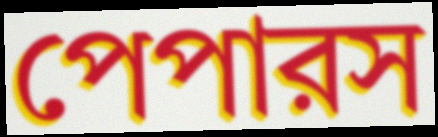
পেপারস